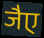
जैए